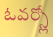
ఓవర్స్లో